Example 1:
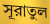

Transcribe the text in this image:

সূরাতুল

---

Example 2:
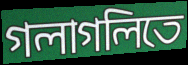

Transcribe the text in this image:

গলাগলিতে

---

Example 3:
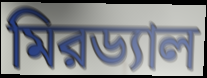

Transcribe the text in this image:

মিরড্যাল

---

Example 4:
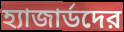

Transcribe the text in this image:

হ্যাজার্ডদের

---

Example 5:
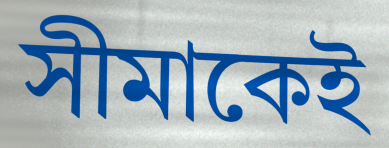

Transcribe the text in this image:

সীমাকেই